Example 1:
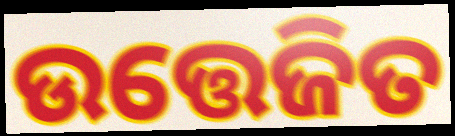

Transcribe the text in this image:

ଉତ୍ତେଜିତ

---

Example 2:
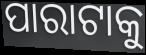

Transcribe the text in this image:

ପାରାଟାକୁ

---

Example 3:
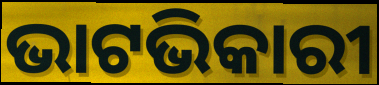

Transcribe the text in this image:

ଭାଟଭିକାରୀ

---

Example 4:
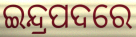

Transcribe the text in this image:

ଇନ୍ଦ୍ରପଦରେ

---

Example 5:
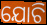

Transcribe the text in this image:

ଯୋଚି